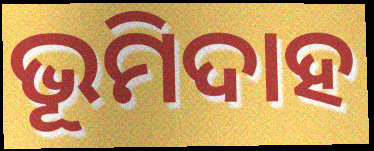
ଭୂମିଦାହ